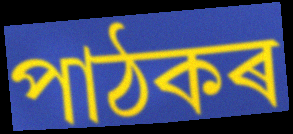
পাঠকৰ